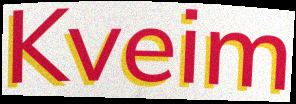
Kveim